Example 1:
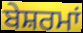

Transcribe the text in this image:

ਬੇਸ਼ਰਮਾਂ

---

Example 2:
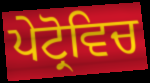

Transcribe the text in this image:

ਪੇਟ੍ਰੋਵਿਚ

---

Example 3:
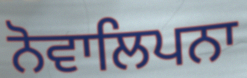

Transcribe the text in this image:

ਨੋਵਾਲਿਪਨਾ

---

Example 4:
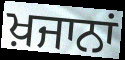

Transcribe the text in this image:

ਖ਼ਜਾਨਾਂ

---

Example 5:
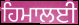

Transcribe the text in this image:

ਹਿਮਾਲਈ